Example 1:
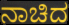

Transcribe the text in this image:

ನಾಚಿದ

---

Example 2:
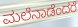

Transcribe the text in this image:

ಮಲೆನಾಡೆಂದರೆ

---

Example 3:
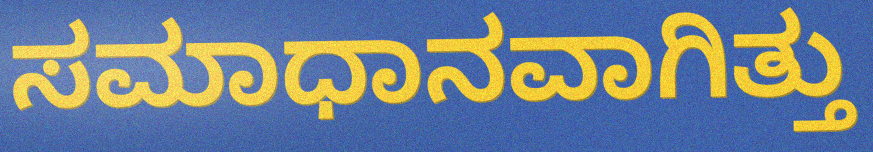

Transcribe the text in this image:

ಸಮಾಧಾನವಾಗಿತ್ತು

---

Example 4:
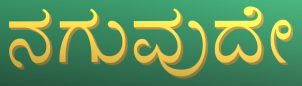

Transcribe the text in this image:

ನಗುವುದೇ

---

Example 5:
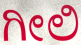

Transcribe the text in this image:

ಗೀಲಿ